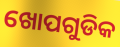
ଖୋପଗୁଡିକ